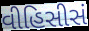
વીહિસીસં